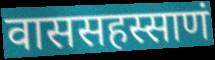
वाससहस्साणं